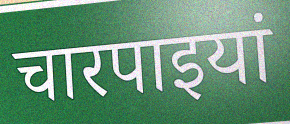
चारपाइयां